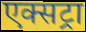
एक्सट्रा